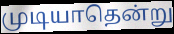
முடியாதென்று